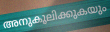
അനുകൂലിക്കുകയും